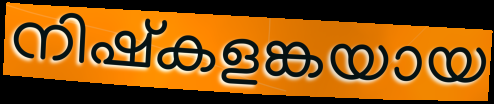
നിഷ്കളങ്കയായ